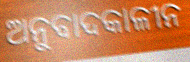
ଅନୁବାଦକାଳୀନ